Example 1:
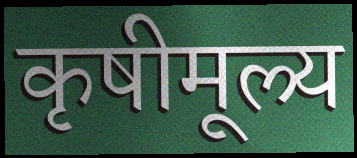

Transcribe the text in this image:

कृषीमूल्य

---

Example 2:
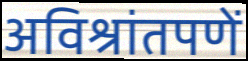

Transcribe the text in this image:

अविश्रांतपणें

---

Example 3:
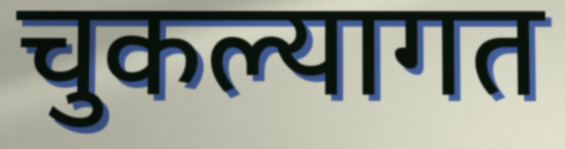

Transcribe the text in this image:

चुकल्यागत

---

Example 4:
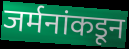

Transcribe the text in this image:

जर्मनांकडून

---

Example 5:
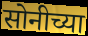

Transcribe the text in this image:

सोनीच्या